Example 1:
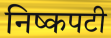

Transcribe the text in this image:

निष्कपटी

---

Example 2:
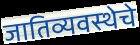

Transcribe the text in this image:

जातिव्यवस्थेचे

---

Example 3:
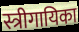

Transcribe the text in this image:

स्त्रीगायिका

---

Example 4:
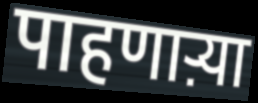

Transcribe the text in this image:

पाहणाऱ्‍या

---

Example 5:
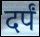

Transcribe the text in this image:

दर्पं